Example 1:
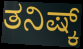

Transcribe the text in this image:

ತನಿಷ್ಕ್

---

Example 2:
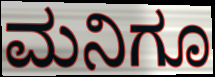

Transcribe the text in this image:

ಮನಿಗೂ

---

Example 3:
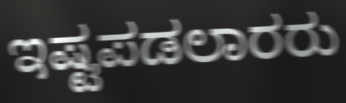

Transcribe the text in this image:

ಇಷ್ಟಪಡಲಾರರು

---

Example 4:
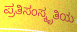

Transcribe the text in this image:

ಪ್ರತಿಸಂಸ್ಕೃತಿಯ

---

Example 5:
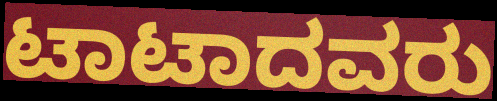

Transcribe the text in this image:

ಟಾಟಾದವರು